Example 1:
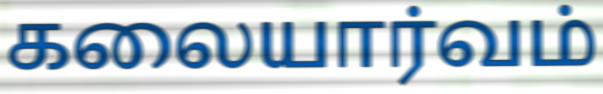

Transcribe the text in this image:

கலையார்வம்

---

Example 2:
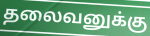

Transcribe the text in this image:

தலைவனுக்கு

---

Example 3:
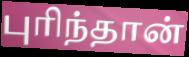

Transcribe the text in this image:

புரிந்தான்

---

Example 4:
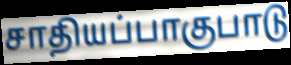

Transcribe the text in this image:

சாதியப்பாகுபாடு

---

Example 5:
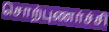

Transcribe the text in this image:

சொற்புணர்ச்சி